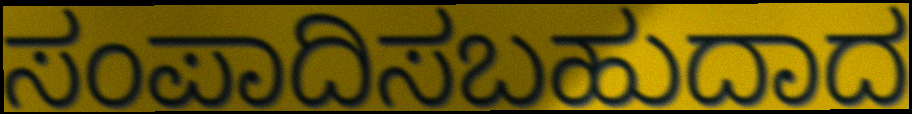
ಸಂಪಾದಿಸಬಹುದಾದ